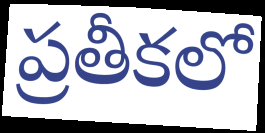
ప్రతీకలో